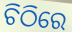
ଚିଠିରେ